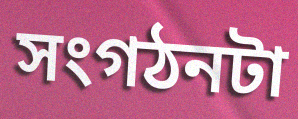
সংগঠনটা